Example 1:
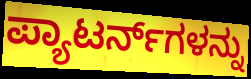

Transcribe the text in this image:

ಪ್ಯಾಟರ್ನ್‌ಗಳನ್ನು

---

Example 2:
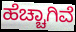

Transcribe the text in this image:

ಹೆಚ್ಚಾಗಿವೆ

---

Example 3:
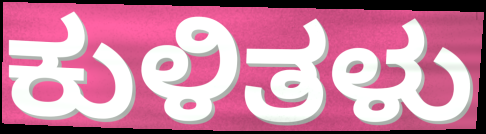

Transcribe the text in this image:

ಕುಳಿತಳು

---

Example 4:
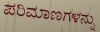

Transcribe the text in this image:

ಪರಿಮಾಣಗಳನ್ನು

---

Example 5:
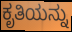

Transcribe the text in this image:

ಕೃತಿಯನ್ನು